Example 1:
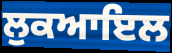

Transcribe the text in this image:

ਲੁਕਆਇਲ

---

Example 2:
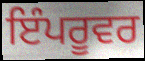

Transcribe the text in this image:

ਇੰਪਰੂਵਰ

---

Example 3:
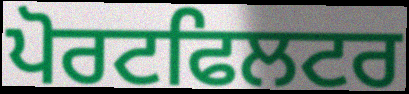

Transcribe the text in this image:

ਪੋਰਟਫਿਲਟਰ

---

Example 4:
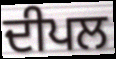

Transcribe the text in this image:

ਦੀਪਲ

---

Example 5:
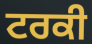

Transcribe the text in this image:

ਟਰਕੀ